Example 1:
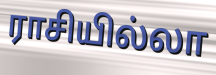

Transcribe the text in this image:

ராசியில்லா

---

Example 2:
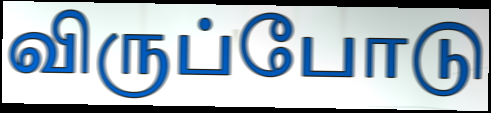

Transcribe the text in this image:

விருப்போடு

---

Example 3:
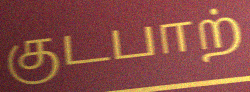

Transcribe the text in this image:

குடபாற்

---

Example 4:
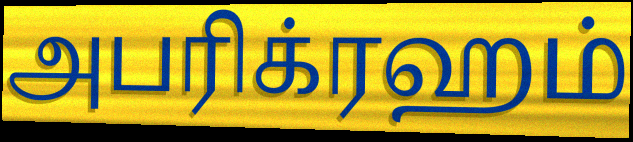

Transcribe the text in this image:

அபரிக்ரஹம்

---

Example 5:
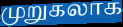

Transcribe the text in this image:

முறுகலாக